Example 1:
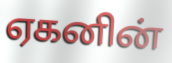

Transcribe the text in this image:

ஏகனின்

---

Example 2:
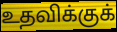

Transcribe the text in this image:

உதவிக்குக்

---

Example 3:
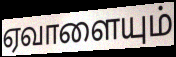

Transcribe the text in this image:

ஏவாளையும்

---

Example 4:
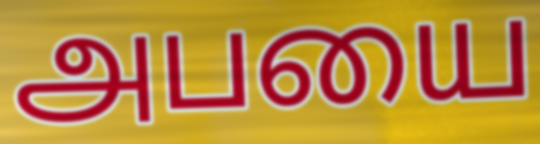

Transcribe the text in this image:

அபயை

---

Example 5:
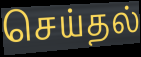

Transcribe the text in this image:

செய்தல்